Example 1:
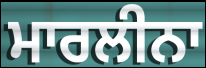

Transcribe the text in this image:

ਮਾਰਲੀਨਾ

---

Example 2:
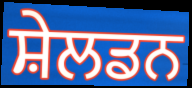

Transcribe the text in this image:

ਸ਼ੇਲਡਨ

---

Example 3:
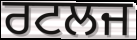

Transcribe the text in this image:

ਰਟਲਜ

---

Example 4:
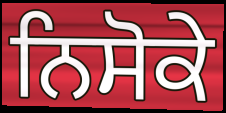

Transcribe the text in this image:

ਨਿਸੋਕੇ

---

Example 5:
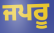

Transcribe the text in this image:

ਜਪਰੂ